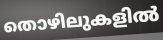
തൊഴിലുകളിൽ